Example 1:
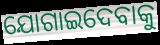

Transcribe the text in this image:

ଯୋଗାଇଦେବାକୁ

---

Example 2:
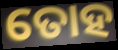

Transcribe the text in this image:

ତୋହ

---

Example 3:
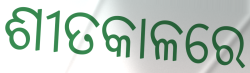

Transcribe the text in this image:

ଶୀତକାଳରେ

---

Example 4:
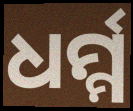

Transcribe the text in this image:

ଧର୍ମ୍ମ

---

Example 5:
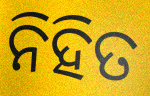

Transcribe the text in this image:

ନିହିତ